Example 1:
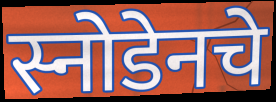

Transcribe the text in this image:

स्नोडेनचे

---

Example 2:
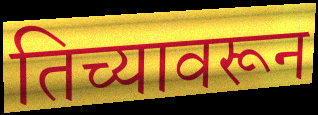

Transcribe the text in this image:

तिच्यावरून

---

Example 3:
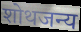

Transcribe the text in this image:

शोथजन्य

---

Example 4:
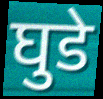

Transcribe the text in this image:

घुडे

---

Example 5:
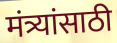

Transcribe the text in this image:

मंत्र्यांसाठी